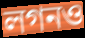
লগনও